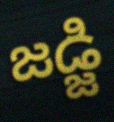
జడ్జి